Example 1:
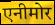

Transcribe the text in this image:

एनीमोर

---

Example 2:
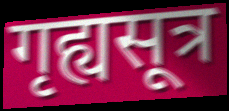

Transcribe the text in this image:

गृह्यसूत्र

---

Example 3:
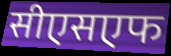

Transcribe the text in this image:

सीएसएफ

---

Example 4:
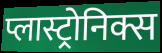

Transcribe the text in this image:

प्लास्ट्रोनिक्स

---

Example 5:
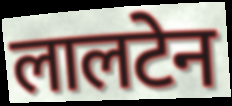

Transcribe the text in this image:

लालटेन